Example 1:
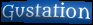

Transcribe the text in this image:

Gustation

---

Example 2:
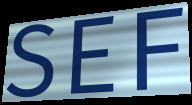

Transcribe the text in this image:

SEF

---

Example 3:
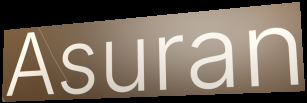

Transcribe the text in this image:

Asuran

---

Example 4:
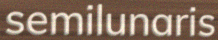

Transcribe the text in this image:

semilunaris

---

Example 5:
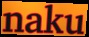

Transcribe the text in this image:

naku